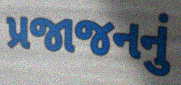
પ્રજાજનનું